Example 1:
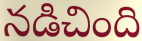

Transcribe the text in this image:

నడిచింది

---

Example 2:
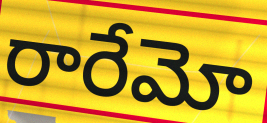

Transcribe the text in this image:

రారేమో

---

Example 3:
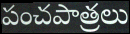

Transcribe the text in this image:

పంచపాత్రలు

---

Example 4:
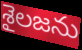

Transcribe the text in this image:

శైలజను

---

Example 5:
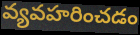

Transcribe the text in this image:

వ్యవహరించడం